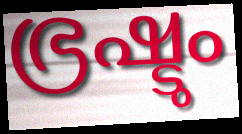
ഭ്രഷ്ടും